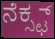
ನೆಕ್ಸ್ಟ್